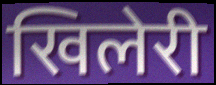
खिलेरी